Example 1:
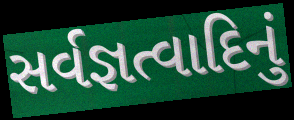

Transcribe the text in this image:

સર્વજ્ઞત્વાદિનું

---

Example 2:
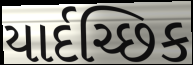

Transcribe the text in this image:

યાર્દચ્છિક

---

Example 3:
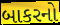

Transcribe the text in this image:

બાકરનો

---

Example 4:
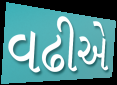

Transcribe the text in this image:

વઢીએ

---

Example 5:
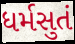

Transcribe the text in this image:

ધર્મસુતં